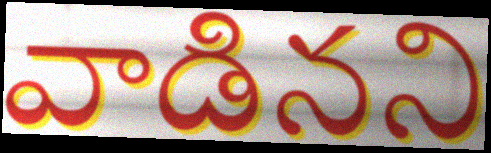
వాడినని